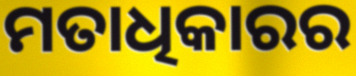
ମତାଧିକାରର